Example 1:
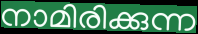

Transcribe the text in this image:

നാമിരിക്കുന്ന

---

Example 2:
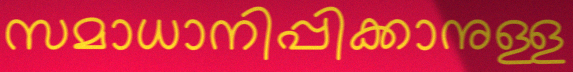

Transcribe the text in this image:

സമാധാനിപ്പിക്കാനുള്ള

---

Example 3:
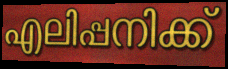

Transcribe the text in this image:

എലിപ്പനിക്ക്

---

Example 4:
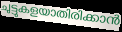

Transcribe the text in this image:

ചുട്ടുകളയാതിരിക്കാൻ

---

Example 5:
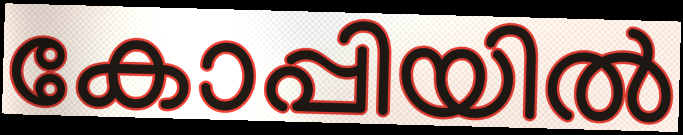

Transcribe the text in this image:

കോപ്പിയിൽ